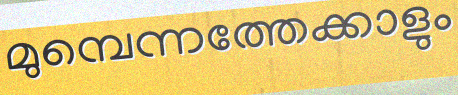
മുമ്പെന്നത്തേക്കാളും